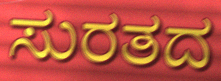
ಸುರತದ